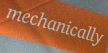
mechanically